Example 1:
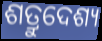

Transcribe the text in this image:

ଶତ୍ରୁଦେଶ୍ୟ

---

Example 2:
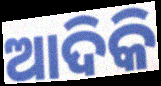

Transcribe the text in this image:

ଆଦିକି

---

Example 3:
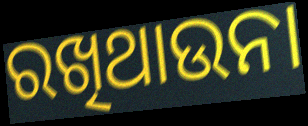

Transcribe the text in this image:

ରଖିଥାଉନା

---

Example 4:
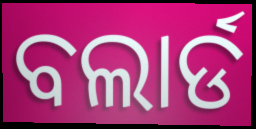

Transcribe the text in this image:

ବଲାର୍ଡ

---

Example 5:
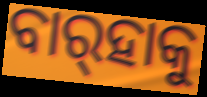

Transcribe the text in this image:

ବାର୍‍ହାକୁ